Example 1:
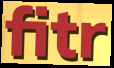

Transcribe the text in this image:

fitr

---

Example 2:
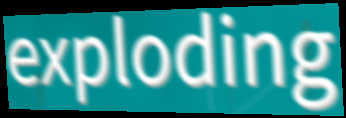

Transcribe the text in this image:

exploding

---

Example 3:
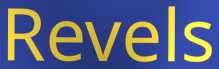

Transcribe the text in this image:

Revels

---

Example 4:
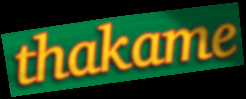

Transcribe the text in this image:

thakame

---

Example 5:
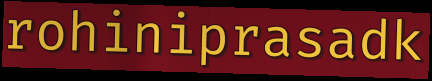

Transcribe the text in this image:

rohiniprasadk